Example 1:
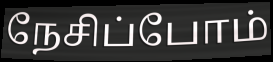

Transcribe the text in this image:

நேசிப்போம்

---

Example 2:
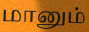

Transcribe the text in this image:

மானும்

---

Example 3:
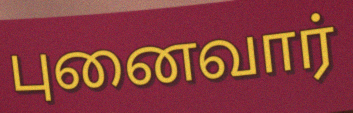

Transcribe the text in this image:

புனைவார்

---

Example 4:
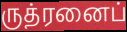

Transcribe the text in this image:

ருத்ரனைப்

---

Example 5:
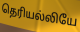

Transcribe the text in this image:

தெரியல்லியே